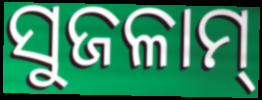
ସୁଜଳାମ୍